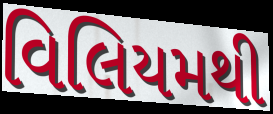
વિલિયમથી